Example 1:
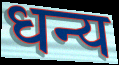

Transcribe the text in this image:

धन्य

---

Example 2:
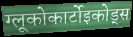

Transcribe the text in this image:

ग्लूकोकार्टोइकोड्स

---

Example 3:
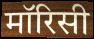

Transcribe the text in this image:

मॉरिसी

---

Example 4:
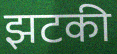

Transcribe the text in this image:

झटकी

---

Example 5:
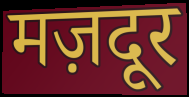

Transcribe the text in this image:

मज़दूर